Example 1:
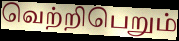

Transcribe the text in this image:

வெற்றிபெறும்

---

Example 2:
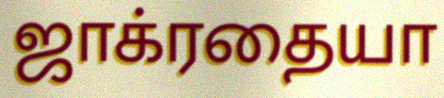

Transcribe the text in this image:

ஜாக்ரதையா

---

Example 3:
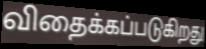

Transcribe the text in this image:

விதைக்கப்படுகிறது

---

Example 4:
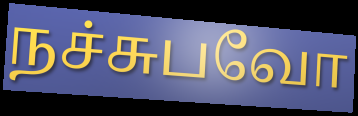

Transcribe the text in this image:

நச்சுபவோ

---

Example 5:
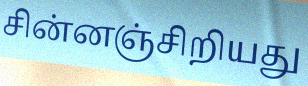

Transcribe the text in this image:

சின்னஞ்சிறியது